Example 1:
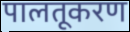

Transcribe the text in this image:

पालतूकरण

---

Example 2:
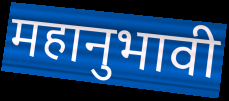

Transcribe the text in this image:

महानुभावी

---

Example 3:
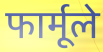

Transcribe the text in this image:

फार्मूले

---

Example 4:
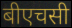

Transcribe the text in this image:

बीएचसी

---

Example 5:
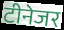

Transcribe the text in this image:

टीनेजर